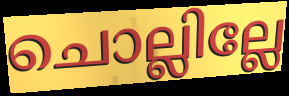
ചൊല്ലില്ലേ